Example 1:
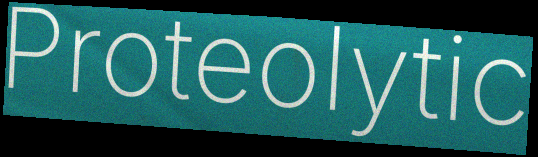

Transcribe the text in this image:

Proteolytic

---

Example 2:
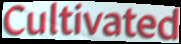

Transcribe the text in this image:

Cultivated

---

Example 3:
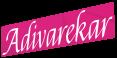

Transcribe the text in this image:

Adivarekar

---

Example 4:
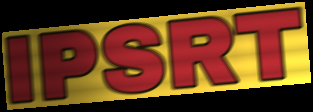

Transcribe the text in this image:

IPSRT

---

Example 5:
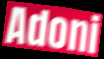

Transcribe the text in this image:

Adoni